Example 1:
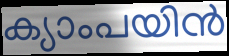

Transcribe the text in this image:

ക്യാംപയിൻ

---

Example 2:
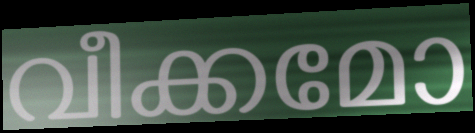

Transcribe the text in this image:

വീക്കമോ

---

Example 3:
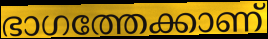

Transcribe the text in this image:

ഭാഗത്തേക്കാണ്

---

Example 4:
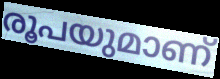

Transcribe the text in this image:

രൂപയുമാണ്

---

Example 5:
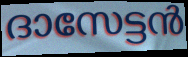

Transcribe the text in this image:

ദാസേട്ടൻ